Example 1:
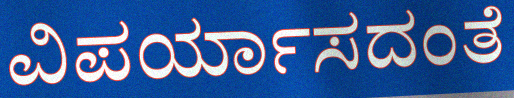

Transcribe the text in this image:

ವಿಪರ್ಯಾಸದಂತೆ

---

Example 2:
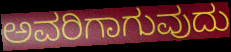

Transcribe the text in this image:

ಅವರಿಗಾಗುವುದು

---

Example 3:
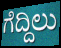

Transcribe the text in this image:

ಗೆದ್ದಿಲು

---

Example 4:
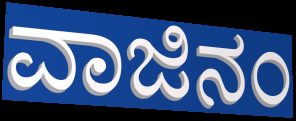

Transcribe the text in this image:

ವಾಜಿನಂ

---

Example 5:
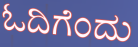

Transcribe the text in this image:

ಓದಿಗೆಂದು